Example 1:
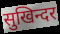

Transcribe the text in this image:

सुखिन्दर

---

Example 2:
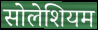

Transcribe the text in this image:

सोलेशियम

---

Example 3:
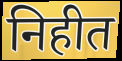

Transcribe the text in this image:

निहीत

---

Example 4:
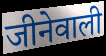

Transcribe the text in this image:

जीनेवाली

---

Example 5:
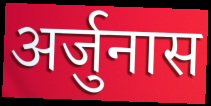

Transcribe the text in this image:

अर्जुनास